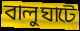
বালুঘাটে